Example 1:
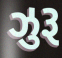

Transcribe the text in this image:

ઝુરૂ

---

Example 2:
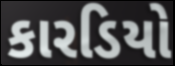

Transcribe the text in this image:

કારડિયો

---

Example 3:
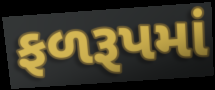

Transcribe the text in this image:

ફળરૂપમાં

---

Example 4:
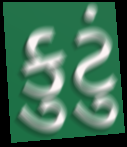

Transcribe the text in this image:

કુટું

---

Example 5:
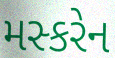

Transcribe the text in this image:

મસ્કરેન